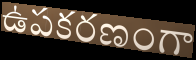
ఉపకరణంగా